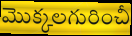
మొక్కలగురించీ